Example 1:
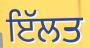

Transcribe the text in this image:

ਇੱਲਤ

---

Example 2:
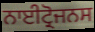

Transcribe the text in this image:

ਨਾਈਟ੍ਰੋਜਨਸ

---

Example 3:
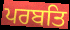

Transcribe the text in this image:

ਪਰਬਤਿ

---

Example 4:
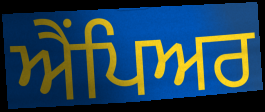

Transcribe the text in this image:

ਐਂਪਿਅਰ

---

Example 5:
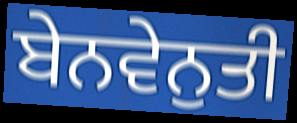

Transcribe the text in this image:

ਬੇਨਵੇਨੁਤੀ